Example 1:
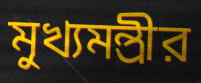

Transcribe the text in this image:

মুখ্যমন্ত্রীর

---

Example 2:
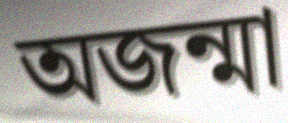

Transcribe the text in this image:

অজন্মা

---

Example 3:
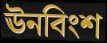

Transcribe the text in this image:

ঊনবিংশ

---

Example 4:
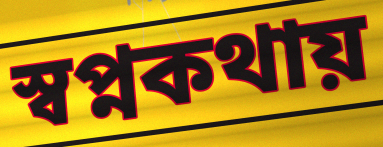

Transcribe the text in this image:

স্বপ্নকথায়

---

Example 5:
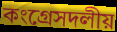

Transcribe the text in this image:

কংগ্রেসদলীয়